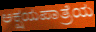
ಅಕ್ಷಯಪಾತ್ರೆಯ